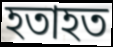
হতাহত